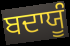
ਬਦਾਯੂੰ